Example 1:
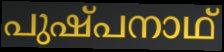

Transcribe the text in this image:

പുഷ്പനാഥ്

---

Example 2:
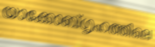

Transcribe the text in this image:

യാക്കോബ്ഗൃഹത്തിലെ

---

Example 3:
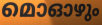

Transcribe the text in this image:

മൊഓഴും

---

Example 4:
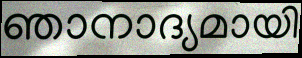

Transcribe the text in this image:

ഞാനാദ്യമായി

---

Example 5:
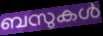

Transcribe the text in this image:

ബസുകൾ